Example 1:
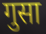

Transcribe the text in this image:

गुसा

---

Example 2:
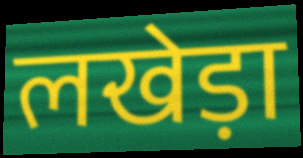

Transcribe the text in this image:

लखेड़ा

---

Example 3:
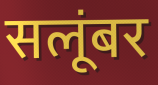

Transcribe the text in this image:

सलूंबर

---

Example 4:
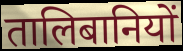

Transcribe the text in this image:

तालिबानियों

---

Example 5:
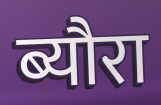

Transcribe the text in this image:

ब्‍यौरा